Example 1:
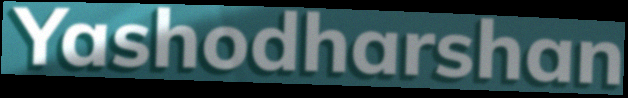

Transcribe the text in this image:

Yashodharshan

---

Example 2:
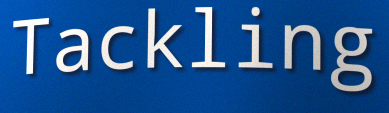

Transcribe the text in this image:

Tackling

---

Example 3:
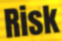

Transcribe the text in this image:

Risk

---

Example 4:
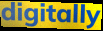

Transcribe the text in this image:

digitally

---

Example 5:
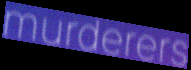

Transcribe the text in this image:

murderers